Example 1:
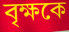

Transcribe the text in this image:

বৃক্ষকে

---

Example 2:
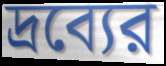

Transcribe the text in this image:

দ্রব্যের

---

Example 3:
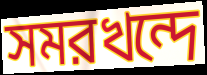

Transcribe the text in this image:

সমরখন্দে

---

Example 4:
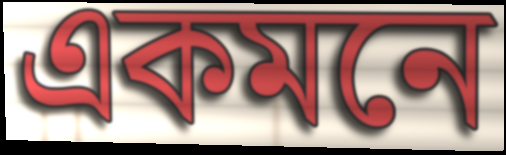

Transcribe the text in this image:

একমনে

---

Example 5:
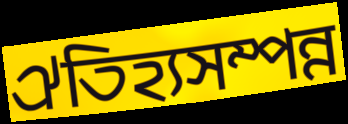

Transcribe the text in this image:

ঐতিহ্যসম্পন্ন